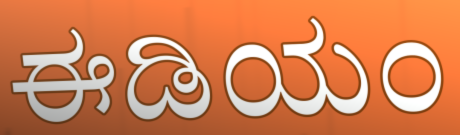
ಈಡಿಯಂ